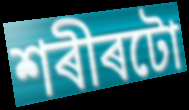
শৰীৰটো